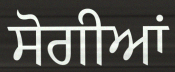
ਸੋਗੀਆਂ